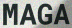
MAGA